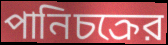
পানিচক্রের